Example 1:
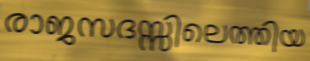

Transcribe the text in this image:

രാജസദസ്സിലെത്തിയ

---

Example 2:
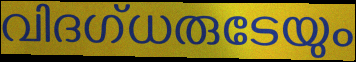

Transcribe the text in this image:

വിദഗ്ധരുടേയും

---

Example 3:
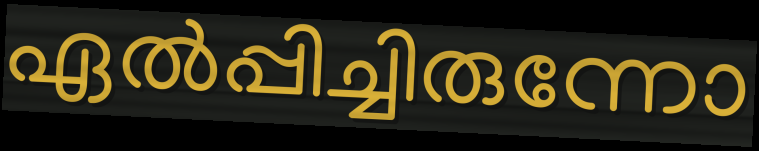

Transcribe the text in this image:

ഏൽപ്പിച്ചിരുന്നോ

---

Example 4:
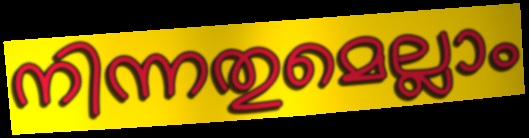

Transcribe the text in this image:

നിന്നതുമെല്ലാം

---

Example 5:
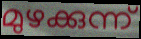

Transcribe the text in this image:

മുഴക്കുന്ന്